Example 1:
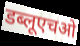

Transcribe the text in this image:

डब्लूएचओ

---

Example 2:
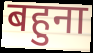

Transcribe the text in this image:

बहुना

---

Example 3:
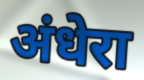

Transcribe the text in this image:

अंधेरा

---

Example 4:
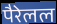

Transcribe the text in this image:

पैरेलल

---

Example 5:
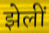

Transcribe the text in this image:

झेलीं